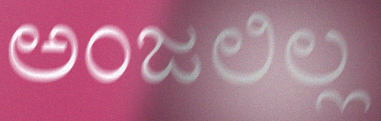
ಅಂಜಲಿಲ್ಲ